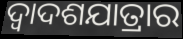
ଦ୍ୱାଦଶଯାତ୍ରାର